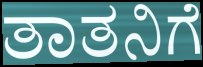
ತಾತನಿಗೆ